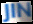
JIN